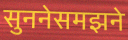
सुननेसमझने